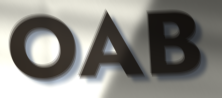
OAB